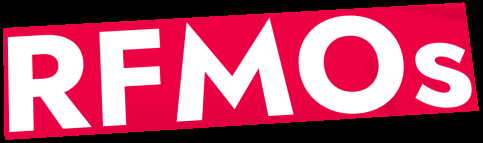
RFMOs